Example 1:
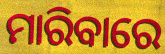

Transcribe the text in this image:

ମାରିବାରେ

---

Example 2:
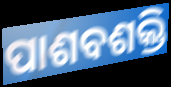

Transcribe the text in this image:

ପାଶବଶକ୍ତି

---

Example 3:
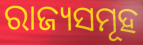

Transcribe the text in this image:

ରାଜ୍ୟସମୂହ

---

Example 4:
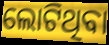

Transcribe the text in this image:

ଲୋଟିଥିବା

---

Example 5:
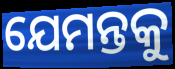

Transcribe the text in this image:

ଯେମନ୍ତକୁ